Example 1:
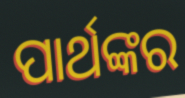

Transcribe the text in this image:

ପାର୍ଥଙ୍କର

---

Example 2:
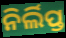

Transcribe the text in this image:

ନିର୍ଲିପ୍ତ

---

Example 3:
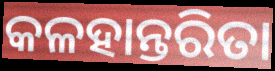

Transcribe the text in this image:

କଳହାନ୍ତରିତା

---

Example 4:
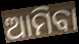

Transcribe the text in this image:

ଆମିବା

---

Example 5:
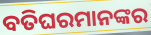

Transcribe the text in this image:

ବତିଘରମାନଙ୍କର